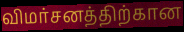
விமர்சனத்திற்கான